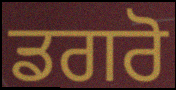
ਡਗਰੋ